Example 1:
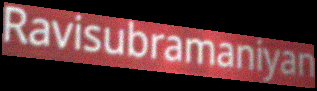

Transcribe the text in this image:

Ravisubramaniyan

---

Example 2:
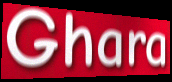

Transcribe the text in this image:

Ghara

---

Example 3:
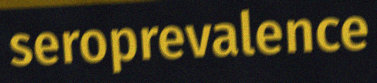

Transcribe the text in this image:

seroprevalence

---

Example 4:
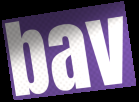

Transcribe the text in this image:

bav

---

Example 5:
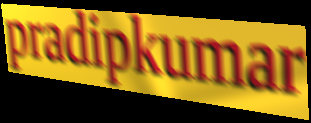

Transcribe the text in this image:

pradipkumar